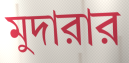
মুদারার